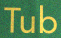
Tub